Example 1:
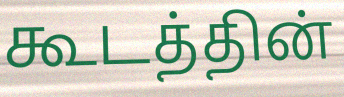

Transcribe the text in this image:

கூடத்தின்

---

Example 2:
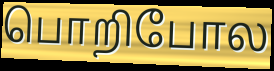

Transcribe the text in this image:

பொறிபோல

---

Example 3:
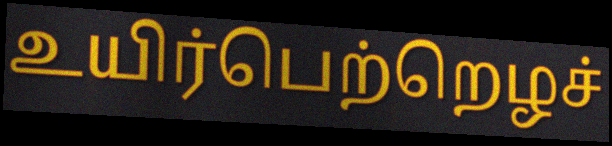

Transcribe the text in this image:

உயிர்பெற்றெழச்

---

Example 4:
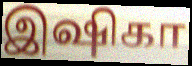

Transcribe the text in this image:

இஷிகா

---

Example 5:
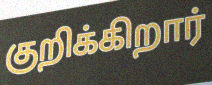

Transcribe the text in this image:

குறிக்கிறார்